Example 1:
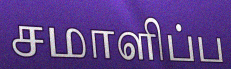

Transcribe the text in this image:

சமாளிப்ப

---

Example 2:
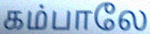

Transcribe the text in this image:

கம்பாலே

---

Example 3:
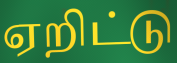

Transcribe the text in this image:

ஏறிட்டு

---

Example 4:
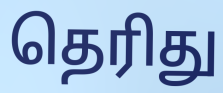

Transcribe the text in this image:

தெரிது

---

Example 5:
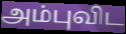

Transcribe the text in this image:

அம்புவிட